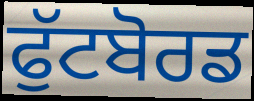
ਫੁੱਟਬੋਰਡ